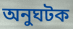
অনুঘটক